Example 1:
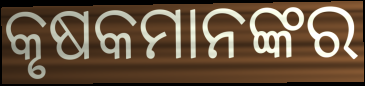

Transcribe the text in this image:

କୃଷକମାନଙ୍କର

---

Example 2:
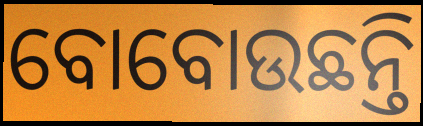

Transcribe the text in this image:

ବୋବୋଉଛନ୍ତି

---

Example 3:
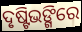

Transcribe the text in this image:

ଦୃଷ୍ଟିଭଙ୍ଗିରେ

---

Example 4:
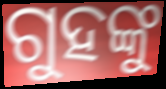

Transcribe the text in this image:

ଗୁହଙ୍କୁ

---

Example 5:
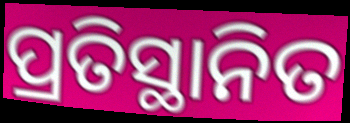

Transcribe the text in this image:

ପ୍ରତିସ୍ଥାନିତ